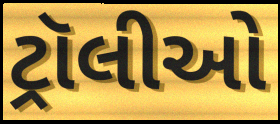
ટ્રૉલીઓ